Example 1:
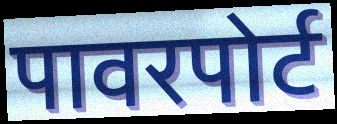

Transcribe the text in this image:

पावरपोर्ट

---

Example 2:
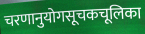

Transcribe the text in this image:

चरणानुयोगसूचकचूलिका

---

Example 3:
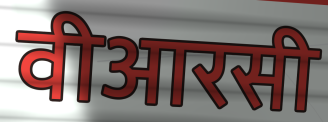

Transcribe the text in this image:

वीआरसी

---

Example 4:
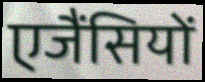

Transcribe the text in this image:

एजैंसियों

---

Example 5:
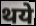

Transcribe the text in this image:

थये